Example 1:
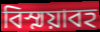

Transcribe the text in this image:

বিস্ময়াবহ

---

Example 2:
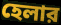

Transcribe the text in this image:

হেলার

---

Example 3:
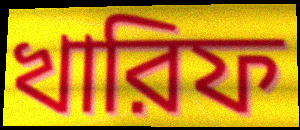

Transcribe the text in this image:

খারিফ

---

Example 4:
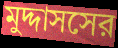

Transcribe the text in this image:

মুদ্দাসসের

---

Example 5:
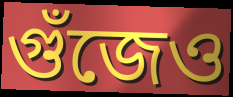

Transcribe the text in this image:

গুঁজেও